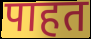
पाहत